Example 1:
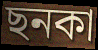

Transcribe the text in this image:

ছনকা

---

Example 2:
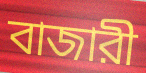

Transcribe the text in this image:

বাজারী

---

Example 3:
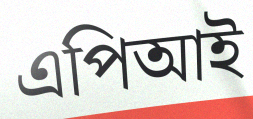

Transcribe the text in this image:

এপিআই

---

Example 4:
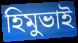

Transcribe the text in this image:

হিমুভাই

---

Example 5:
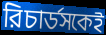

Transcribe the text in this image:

রিচার্ডসকেই